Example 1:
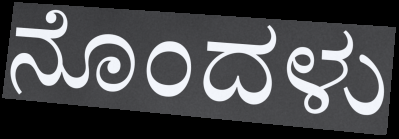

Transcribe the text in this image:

ನೊಂದಳು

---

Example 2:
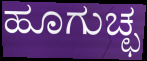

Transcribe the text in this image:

ಹೂಗುಚ್ಛ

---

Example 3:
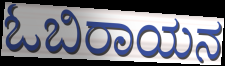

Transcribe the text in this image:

ಓಬಿರಾಯನ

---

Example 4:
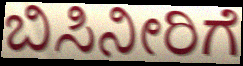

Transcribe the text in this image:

ಬಿಸಿನೀರಿಗೆ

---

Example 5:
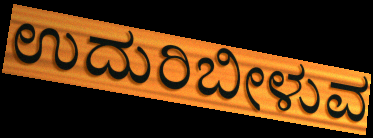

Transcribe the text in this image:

ಉದುರಿಬೀಳುವ